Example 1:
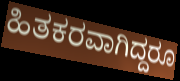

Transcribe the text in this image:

ಹಿತಕರವಾಗಿದ್ದರೂ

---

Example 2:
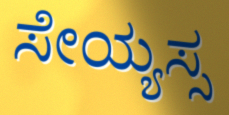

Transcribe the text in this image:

ಸೇಯ್ಯಸ್ಸ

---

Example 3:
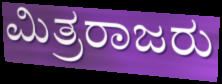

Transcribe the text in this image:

ಮಿತ್ರರಾಜರು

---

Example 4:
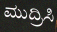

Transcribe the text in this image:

ಮುದ್ರಿಸಿ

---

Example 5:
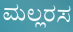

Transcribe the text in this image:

ಮಲ್ಲರಸ